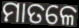
ମାତଳେ